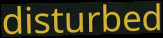
disturbed